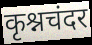
कृश्नचंदर